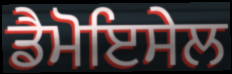
ਡੈਮੋਇਸੇਲ